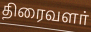
திரைவளர்